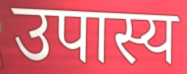
उपास्य